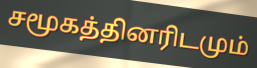
சமூகத்தினரிடமும்